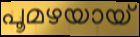
പൂമഴയായ്